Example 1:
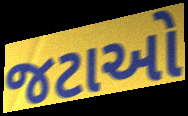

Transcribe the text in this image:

જટાઓ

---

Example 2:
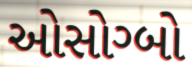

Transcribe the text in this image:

ઓસોગ્બો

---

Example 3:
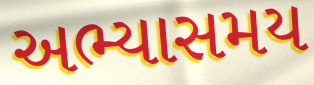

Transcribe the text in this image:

અભ્યાસમય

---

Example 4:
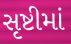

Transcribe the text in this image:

સૃષ્ટીમાં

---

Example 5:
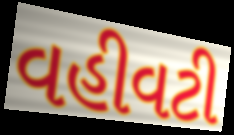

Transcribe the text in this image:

વહીવટી